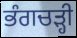
ਭੰਗਚੜ੍ਹੀ